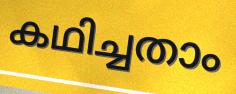
കഥിച്ചതാം